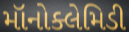
મૉનોક્લેમિડી